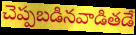
చెప్పబడినవాడితడే